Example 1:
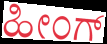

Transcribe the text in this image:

ಹೀಂಗ್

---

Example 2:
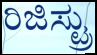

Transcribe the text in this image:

ರಿಜಿಸ್ಟ್ರು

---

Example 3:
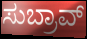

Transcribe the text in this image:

ಸುಬ್ರಾವ್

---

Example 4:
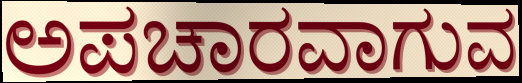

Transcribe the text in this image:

ಅಪಚಾರವಾಗುವ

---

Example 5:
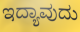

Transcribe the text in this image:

ಇದ್ಯಾವುದು